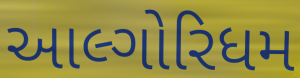
આલ્ગોરિધમ